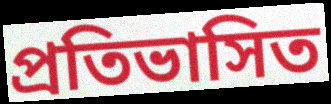
প্রতিভাসিত